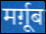
मर्ग़ूब